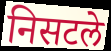
निसटले